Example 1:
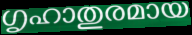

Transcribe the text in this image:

ഗൃഹാതുരമായ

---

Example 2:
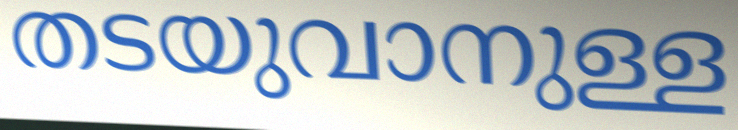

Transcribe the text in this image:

തടയുവാനുള്ള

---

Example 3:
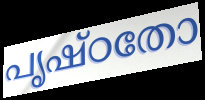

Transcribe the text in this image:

പൃഷ്ഠതോ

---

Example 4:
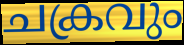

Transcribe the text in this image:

ചക്രവും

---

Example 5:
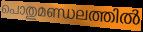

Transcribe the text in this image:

പൊതുമണ്ഡലത്തിൽ